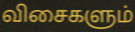
விசைகளும்